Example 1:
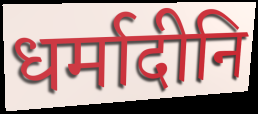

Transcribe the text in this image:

धर्मादीनि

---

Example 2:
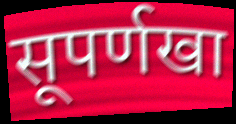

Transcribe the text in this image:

सूपर्णखा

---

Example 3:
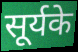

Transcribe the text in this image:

सूर्यके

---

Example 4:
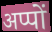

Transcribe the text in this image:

अप्पों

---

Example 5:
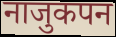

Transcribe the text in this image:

नाजुकपन